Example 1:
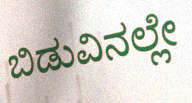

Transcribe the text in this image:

ಬಿಡುವಿನಲ್ಲೇ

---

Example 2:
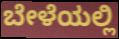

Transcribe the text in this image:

ಬೇಳೆಯಲ್ಲಿ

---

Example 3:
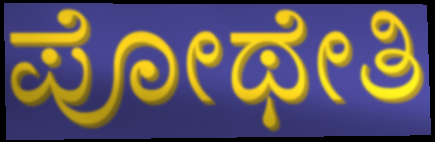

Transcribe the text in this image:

ಪೋಥೇತಿ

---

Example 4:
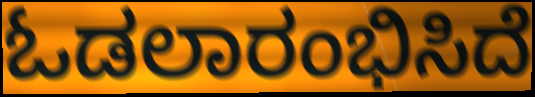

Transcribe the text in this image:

ಓಡಲಾರಂಭಿಸಿದೆ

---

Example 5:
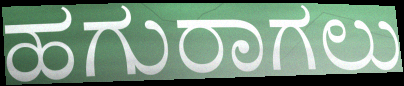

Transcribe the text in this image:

ಹಗುರಾಗಲು